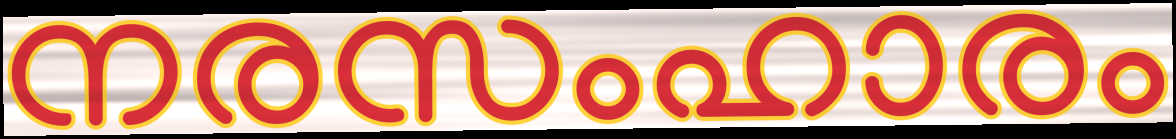
നരസംഹാരം